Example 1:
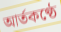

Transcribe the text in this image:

আর্তকণ্ঠে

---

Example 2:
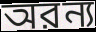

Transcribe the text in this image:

অরন্য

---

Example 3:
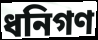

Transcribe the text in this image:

ধনিগণ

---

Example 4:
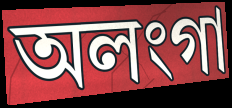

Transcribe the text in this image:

অলংগা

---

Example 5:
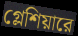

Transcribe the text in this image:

গ্লেশিয়ারে